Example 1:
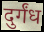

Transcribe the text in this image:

दुर्गंध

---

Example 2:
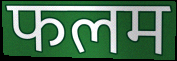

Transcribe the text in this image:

फलम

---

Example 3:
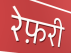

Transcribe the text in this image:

रेफ़री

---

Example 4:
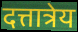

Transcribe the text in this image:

दत्तात्रेय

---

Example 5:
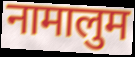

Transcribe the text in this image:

नामालुम